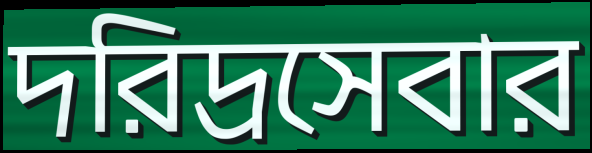
দরিদ্রসেবার